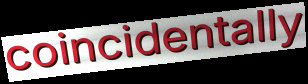
coincidentally